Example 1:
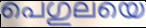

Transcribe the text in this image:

പെഗുലയെ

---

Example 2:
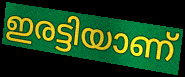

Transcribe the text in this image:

ഇരട്ടിയാണ്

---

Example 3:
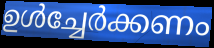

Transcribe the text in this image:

ഉൾച്ചേർക്കണം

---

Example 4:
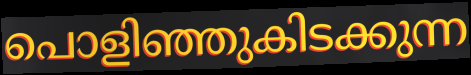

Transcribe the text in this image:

പൊളിഞ്ഞുകിടക്കുന്ന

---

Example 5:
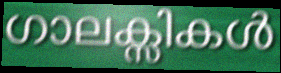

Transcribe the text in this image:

ഗാലക്സികൾ